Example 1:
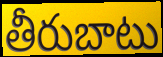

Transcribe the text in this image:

తీరుబాటు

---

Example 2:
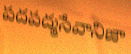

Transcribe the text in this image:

పదపద్మసేవానిజా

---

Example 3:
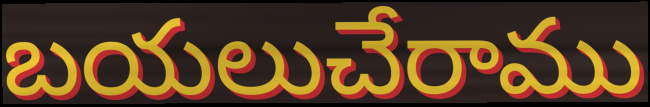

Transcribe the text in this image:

బయలుచేరాము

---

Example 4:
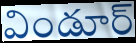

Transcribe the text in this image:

విండూర్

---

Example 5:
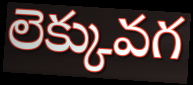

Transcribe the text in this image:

లెక్కువగ